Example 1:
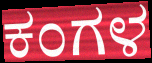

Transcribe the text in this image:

ಕಂಗಳ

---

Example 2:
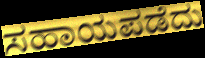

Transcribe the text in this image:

ಸಹಾಯಪಡೆದು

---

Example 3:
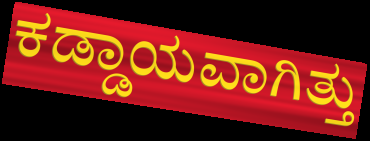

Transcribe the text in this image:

ಕಡ್ಡಾಯವಾಗಿತ್ತು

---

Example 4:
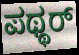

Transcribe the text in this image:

ಪಥ್ಥರ್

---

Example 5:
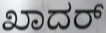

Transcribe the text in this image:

ಖಾದರ್